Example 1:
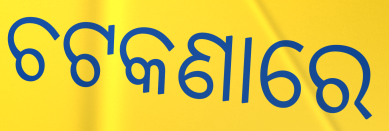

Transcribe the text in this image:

ଚଟକଣାରେ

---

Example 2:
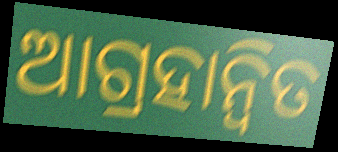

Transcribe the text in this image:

ଆଗ୍ରହାନ୍ୱିତ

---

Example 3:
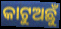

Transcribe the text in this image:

କାଟୁଅଛୁଁ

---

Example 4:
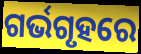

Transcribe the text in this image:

ଗର୍ଭଗୃହରେ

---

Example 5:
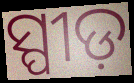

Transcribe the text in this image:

ସ୍ପୀଡ଼